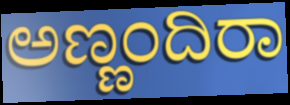
ಅಣ್ಣಂದಿರಾ